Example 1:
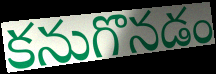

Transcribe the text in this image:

కనుగొనడం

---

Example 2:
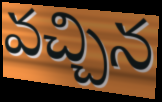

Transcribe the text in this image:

వచ్చిన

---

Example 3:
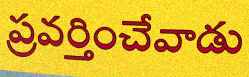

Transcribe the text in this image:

ప్రవర్తించేవాడు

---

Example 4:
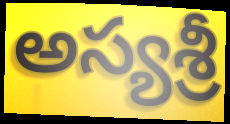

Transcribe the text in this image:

అస్యశ్రీ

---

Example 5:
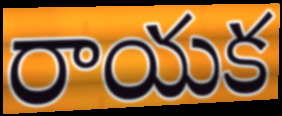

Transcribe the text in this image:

రాయక